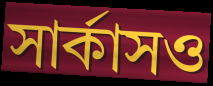
সার্কাসও